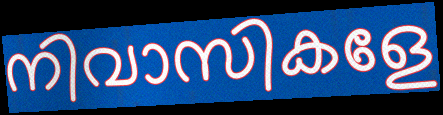
നിവാസികളേ